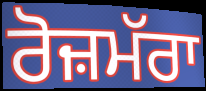
ਰੋਜ਼ਮੱਰਾ